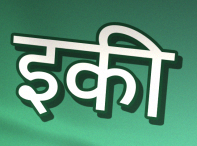
इकी